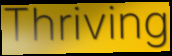
Thriving